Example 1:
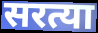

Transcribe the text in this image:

सरत्या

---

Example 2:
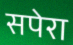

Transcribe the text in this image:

सपेरा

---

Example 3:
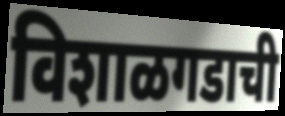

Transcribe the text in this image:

विशाळगडाची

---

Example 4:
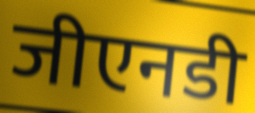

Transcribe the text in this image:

जीएनडी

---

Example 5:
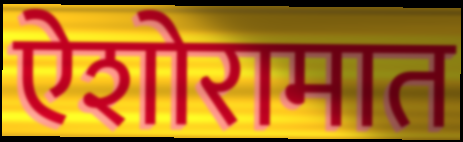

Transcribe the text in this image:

ऐशोरामात